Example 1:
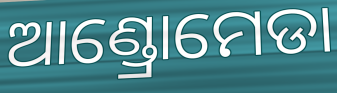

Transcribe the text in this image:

ଆଣ୍ଡ୍ରୋମେଡା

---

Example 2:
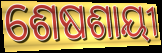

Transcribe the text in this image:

ଶେଷଶାୟୀ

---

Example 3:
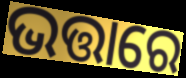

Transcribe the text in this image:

ଭତ୍ତାରେ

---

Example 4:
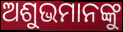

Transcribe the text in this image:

ଅଶୁଭମାନଙ୍କୁ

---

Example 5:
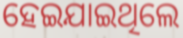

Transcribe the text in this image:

ହେଇଯାଇଥିଲେ